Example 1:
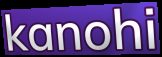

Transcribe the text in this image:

kanohi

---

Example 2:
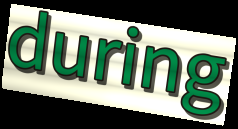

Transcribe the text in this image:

during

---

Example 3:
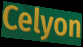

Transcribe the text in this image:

Celyon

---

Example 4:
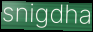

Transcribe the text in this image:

snigdha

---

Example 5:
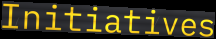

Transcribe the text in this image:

Initiatives